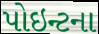
પોઇન્ટના